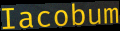
Iacobum